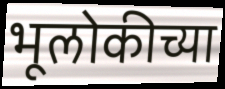
भूलोकीच्या